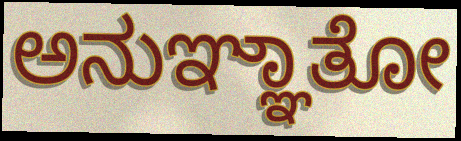
ಅನುಞ್ಞಾತೋ